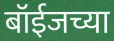
बॉईजच्या